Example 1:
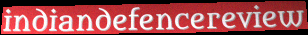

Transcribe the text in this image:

indiandefencereview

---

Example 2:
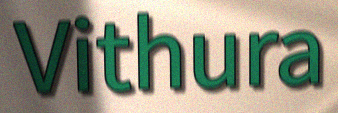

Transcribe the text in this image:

Vithura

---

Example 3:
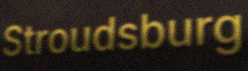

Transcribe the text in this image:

Stroudsburg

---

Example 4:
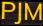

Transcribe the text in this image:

PJM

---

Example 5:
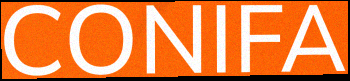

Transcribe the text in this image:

CONIFA